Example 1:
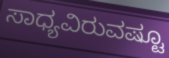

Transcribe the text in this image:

ಸಾಧ್ಯವಿರುವಷ್ಟೂ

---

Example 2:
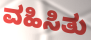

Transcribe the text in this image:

ವಹಿಸಿತು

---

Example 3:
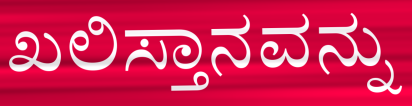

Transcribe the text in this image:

ಖಲಿಸ್ತಾನವನ್ನು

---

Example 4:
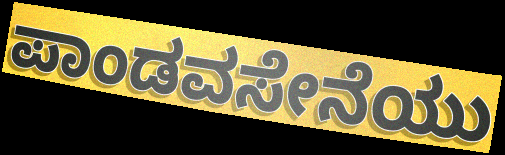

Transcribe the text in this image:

ಪಾಂಡವಸೇನೆಯು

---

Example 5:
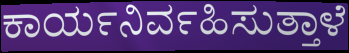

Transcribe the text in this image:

ಕಾರ್ಯನಿರ್ವಹಿಸುತ್ತಾಳೆ